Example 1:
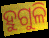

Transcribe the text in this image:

ହୁଗୁଳି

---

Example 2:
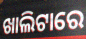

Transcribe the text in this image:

ଖାଲିଟାରେ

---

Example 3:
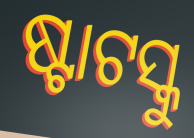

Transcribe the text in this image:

ଷ୍ଟାଟସ୍କୁ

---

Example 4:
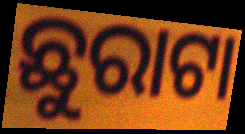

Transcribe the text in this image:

ଛୁରାଟା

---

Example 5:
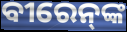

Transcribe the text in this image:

ବୀରେନ୍‍ଙ୍କ